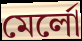
মের্লো